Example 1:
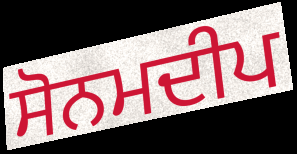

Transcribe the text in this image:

ਸੋਨਮਦੀਪ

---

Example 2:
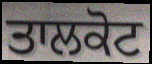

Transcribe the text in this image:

ਤਾਲਕੋਟ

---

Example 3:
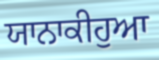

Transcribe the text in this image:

ਯਾਨਾਕੀਹੁਆ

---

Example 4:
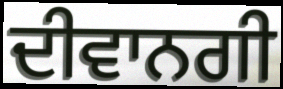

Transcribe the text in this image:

ਦੀਵਾਨਗੀ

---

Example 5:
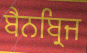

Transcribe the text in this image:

ਬੈਨਬ੍ਰਿਜ